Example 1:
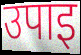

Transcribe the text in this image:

उपाइ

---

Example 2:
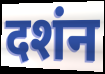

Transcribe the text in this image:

दशंन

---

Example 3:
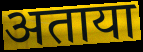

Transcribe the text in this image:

अताया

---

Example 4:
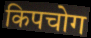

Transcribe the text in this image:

किपचोग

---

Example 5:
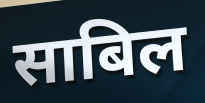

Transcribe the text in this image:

साबिल